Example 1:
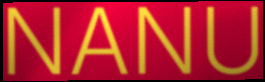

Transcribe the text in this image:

NANU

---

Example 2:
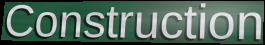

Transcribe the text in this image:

Construction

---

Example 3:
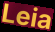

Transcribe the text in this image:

Leia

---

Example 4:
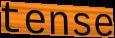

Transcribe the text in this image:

tense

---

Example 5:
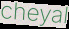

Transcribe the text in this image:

cheyal